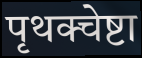
पृथक्चेष्टा